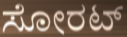
ಸೋರಟ್